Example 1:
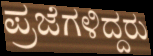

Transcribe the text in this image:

ಪ್ರಜೆಗಳಿದ್ದರು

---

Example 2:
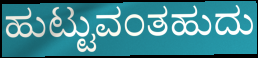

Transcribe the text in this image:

ಹುಟ್ಟುವಂತಹುದು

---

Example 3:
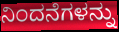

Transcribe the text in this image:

ನಿಂದನೆಗಳನ್ನು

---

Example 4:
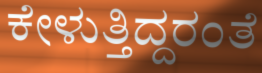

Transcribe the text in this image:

ಕೇಳುತ್ತಿದ್ದರಂತೆ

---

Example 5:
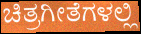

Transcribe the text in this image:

ಚಿತ್ರಗೀತೆಗಳಲ್ಲಿ